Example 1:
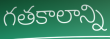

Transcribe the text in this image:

గతకాలాన్ని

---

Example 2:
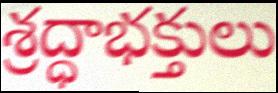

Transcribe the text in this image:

శ్రద్ధాభక్తులు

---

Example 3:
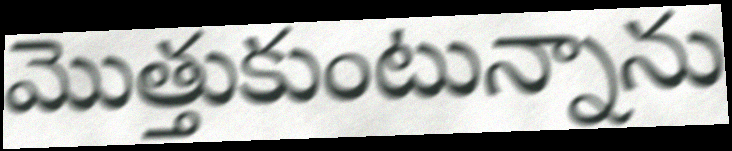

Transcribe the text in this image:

మొత్తుకుంటున్నాను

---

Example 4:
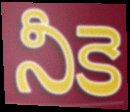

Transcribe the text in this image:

నీకె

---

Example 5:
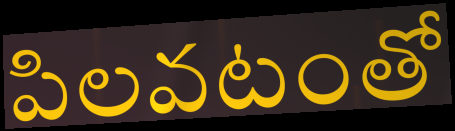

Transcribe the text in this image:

పిలవటంతో